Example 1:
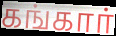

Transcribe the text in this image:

கங்கார்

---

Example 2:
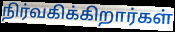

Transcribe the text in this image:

நிர்வகிக்கிறார்கள்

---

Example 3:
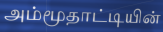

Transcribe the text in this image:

அம்மூதாட்டியின்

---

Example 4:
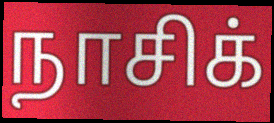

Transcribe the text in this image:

நாசிக்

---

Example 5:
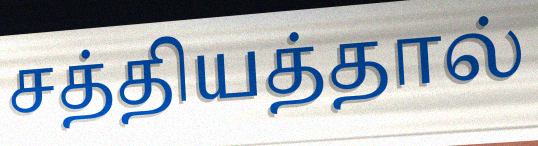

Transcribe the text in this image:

சத்தியத்தால்